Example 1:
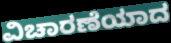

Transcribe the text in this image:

ವಿಚಾರಣೆಯಾದ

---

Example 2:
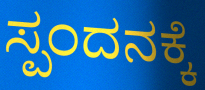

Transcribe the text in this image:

ಸ್ಪಂದನಕ್ಕೆ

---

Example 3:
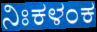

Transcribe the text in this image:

ನಿಃಕಳಂಕ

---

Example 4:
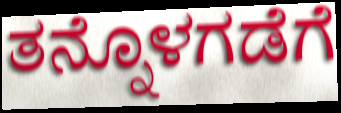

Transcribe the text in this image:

ತನ್ನೊಳಗಡೆಗೆ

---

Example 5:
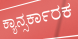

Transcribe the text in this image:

ಕ್ಯಾನ್ಸರ್ಕಾರಕ